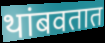
थांबवतात